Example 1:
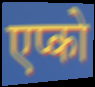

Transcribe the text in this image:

एप्को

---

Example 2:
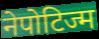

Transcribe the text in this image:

नेपोटिज्म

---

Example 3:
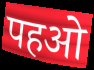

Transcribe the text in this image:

पहओ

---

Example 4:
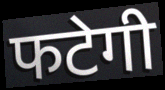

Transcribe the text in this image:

फटेगी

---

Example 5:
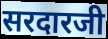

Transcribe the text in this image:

सरदारजी